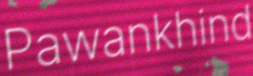
Pawankhind